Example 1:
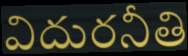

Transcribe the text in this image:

విదురనీతి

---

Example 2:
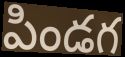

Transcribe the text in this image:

పిండగ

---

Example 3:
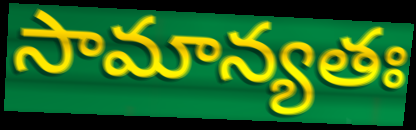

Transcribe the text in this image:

సామాన్యతః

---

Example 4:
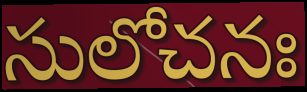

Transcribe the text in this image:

సులోచనః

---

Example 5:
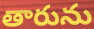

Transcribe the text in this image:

తారును